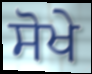
ਸੋਖੇ